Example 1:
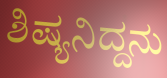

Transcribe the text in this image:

ಶಿಷ್ಯನಿದ್ದನು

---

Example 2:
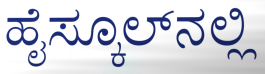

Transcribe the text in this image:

ಹೈಸ್ಕೂಲ್‍ನಲ್ಲಿ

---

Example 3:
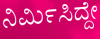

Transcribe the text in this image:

ನಿರ್ಮಿಸಿದ್ದೇ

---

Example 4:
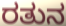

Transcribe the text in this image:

ರತುನ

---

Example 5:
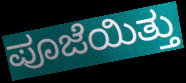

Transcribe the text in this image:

ಪೂಜೆಯಿತ್ತು